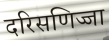
दरिसणिज्जा